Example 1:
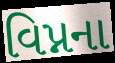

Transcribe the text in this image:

વિપ્નના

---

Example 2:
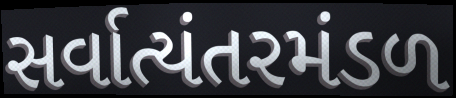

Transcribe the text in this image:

સર્વાત્યંતરમંડળ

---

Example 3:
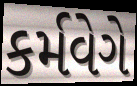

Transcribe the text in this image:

કર્મવેગે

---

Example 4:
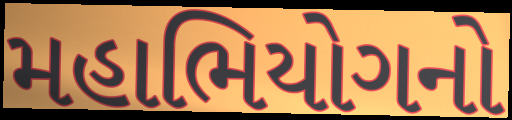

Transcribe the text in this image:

મહાભિયોગનો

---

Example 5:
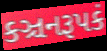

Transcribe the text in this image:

કઞ્ચનરૂપકં